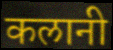
कलानी